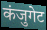
कंजुगेट